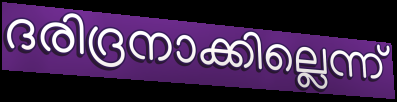
ദരിദ്രനാക്കില്ലെന്ന്